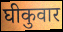
घीकुवार